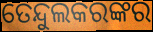
ତେନ୍ଦୁଲକରଙ୍କର